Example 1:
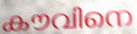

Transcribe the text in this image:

കൗവിനെ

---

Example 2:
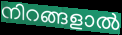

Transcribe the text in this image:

നിറങ്ങളാൽ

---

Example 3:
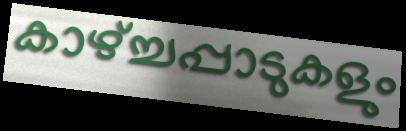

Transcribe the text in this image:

കാഴ്ച്ചപ്പാടുകളും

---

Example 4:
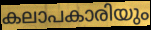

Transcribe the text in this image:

കലാപകാരിയും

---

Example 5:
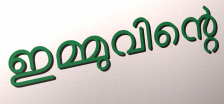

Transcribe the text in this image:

ഇമ്മുവിന്റെ